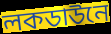
লকডাউনে